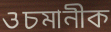
ওচমানীক